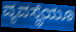
ವ್ಯವಸ್ಥೆಯೂ